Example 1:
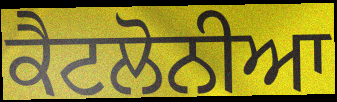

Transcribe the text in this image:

ਕੈਟਲੋਨੀਆ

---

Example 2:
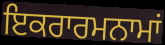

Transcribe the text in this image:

ਇਕਰਾਰਮਨਾਮਾਂ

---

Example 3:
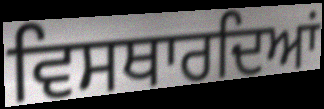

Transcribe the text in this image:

ਵਿਸਥਾਰਦਿਆਂ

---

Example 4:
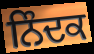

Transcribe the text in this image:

ਨਿੰਦਕ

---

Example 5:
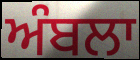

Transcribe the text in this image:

ਅੰਬਲਾ